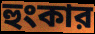
হুংকার